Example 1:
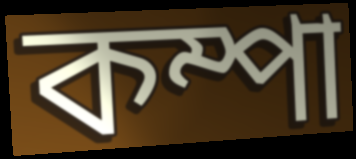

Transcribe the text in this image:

কম্পা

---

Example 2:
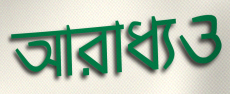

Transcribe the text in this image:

আরাধ্যও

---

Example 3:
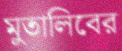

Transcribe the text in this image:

মুতালিবের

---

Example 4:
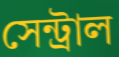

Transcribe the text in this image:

সেন্ট্রাল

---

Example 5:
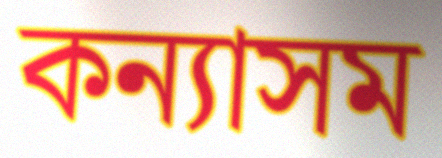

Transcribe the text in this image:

কন্যাসম